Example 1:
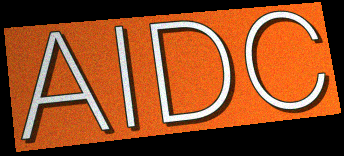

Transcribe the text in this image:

AIDC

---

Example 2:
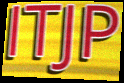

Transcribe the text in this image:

ITJP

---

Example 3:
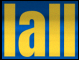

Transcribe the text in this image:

lall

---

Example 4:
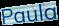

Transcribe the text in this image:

Paula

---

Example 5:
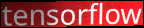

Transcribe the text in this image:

tensorflow